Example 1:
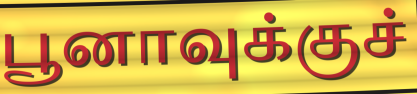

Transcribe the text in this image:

பூனாவுக்குச்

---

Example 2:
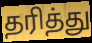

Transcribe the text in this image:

தரித்து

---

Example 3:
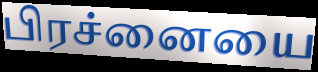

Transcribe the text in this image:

பிரச்னையை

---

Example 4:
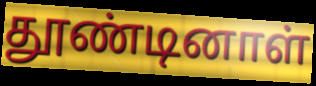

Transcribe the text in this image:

தூண்டினாள்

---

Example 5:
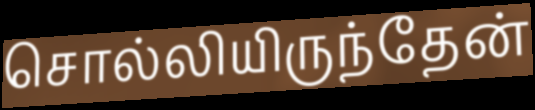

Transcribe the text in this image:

சொல்லியிருந்தேன்